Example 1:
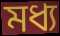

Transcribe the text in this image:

মধ্য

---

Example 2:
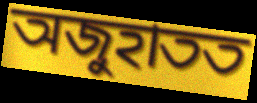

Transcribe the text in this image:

অজুহাতত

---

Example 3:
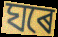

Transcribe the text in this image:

ঘৰে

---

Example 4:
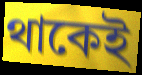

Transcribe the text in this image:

থাকেই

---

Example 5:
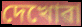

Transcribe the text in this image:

দেখোৱা